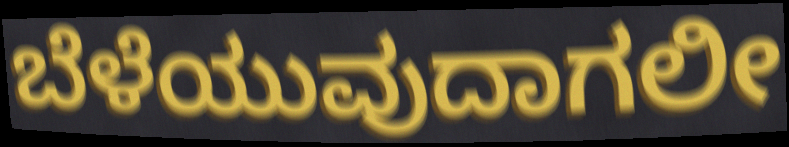
ಬೆಳೆಯುವುದಾಗಲೀ